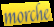
morche